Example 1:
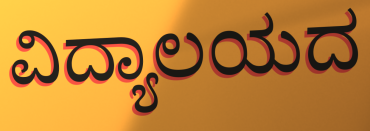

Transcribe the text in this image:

ವಿದ್ಯಾಲಯದ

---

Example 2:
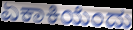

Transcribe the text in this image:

ಏಕಾಕಿಯೆಂದು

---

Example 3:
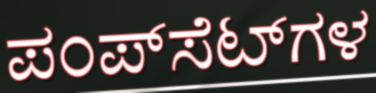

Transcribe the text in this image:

ಪಂಪ್‌ಸೆಟ್‌ಗಳ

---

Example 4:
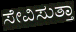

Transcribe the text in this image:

ಸೇವಿಸುತ್ತಾ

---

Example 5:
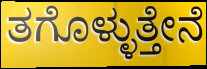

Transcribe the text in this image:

ತಗೊಳ್ಳುತ್ತೇನೆ